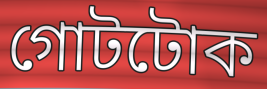
গোটটোক